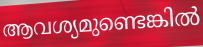
ആവശ്യമുണ്ടെങ്കിൽ